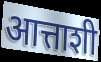
आत्ताशी